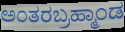
ಅಂತರಬ್ರಹ್ಮಾಂಡ